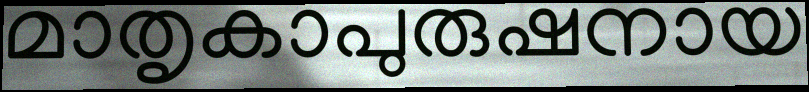
മാതൃകാപുരുഷനായ